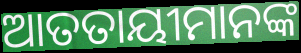
ଆତତାୟୀମାନଙ୍କ